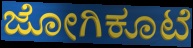
ಜೋಗಿಕೂಟೆ